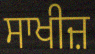
ਸਾਖੀਜ਼